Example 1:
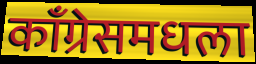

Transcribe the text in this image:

काँग्रेसमधला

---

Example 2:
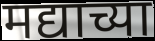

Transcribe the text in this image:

मद्याच्या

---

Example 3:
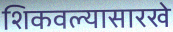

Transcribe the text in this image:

शिकवल्यासारखे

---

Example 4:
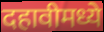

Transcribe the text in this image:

दहावीमध्ये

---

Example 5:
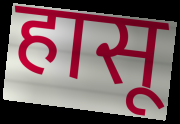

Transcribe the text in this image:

हासू